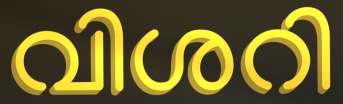
വിശറി